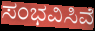
ಸಂಭವಿಸಿವೆ